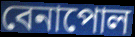
বেনাপোল